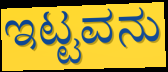
ಇಟ್ಟವನು